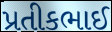
પ્રતીકભાઈ